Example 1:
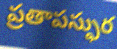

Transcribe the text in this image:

ప్రతాపస్ఫుర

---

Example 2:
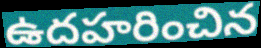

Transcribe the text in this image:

ఉదహరించిన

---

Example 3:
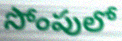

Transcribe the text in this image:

సోంపులో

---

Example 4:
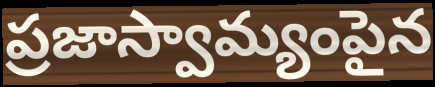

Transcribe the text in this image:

ప్రజాస్వామ్యంపైన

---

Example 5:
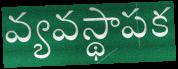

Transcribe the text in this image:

వ్యవస్థాపక